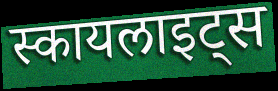
स्कायलाइट्स